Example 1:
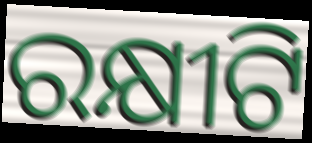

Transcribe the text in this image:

ରକ୍ଷୀଟି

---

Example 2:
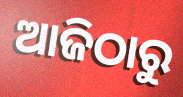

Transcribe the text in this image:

ଆଜିଠାରୁ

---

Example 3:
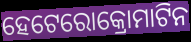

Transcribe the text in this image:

ହେଟେରୋକ୍ରୋମାଟିନ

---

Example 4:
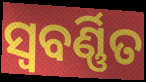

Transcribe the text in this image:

ସ୍ୱବର୍ଣ୍ଣିତ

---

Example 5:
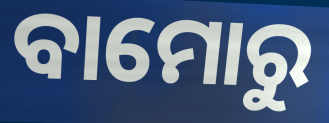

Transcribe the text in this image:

ବାମୋରୁ